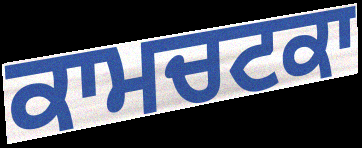
ਕਾਮਚਟਕਾ